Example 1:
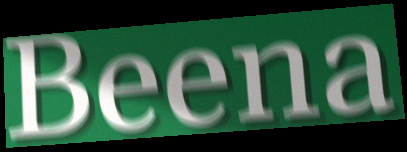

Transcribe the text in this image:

Beena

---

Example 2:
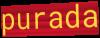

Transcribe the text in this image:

purada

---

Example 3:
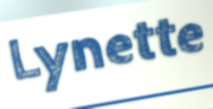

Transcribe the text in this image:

Lynette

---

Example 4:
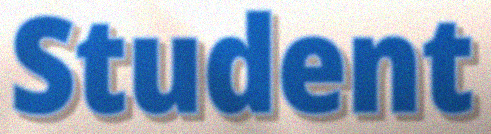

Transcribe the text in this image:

Student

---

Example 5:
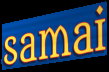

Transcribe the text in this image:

samai